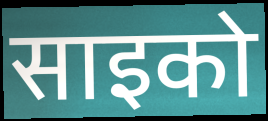
साइको